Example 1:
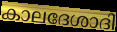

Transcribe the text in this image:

കാലദേശാദി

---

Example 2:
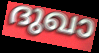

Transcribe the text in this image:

ദുഖാ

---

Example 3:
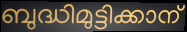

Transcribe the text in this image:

ബുദ്ധിമുട്ടിക്കാന്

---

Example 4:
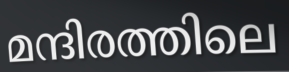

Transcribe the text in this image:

മന്ദിരത്തിലെ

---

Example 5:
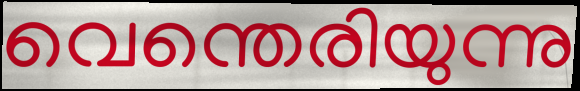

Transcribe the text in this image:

വെന്തെരിയുന്നു